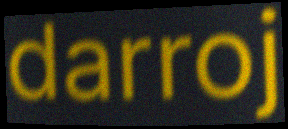
darroj